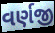
વર્ણજી